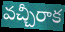
వచ్చీరాక